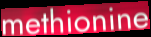
methionine